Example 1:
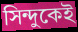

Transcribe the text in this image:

সিন্দুকেই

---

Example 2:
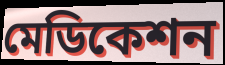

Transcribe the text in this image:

মেডিকেশন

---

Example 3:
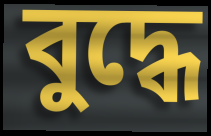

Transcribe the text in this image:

বুদ্ধে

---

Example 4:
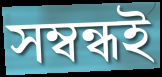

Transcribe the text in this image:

সম্বন্ধই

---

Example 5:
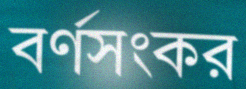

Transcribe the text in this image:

বর্ণসংকর